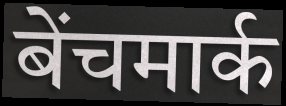
बेंचमार्क